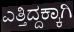
ಎತ್ತಿದ್ದಕ್ಕಾಗಿ